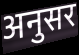
अनुसर